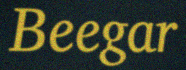
Beegar